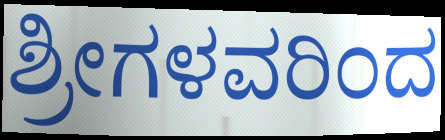
ಶ್ರೀಗಳವರಿಂದ